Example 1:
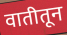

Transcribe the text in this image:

वातीतून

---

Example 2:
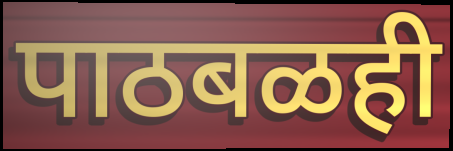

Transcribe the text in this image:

पाठबळही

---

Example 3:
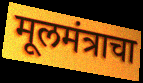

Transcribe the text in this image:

मूलमंत्राचा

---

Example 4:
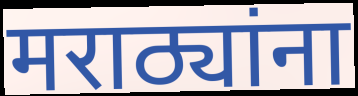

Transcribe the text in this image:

मराठ्यांना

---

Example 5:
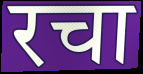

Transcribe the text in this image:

रचा